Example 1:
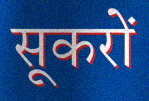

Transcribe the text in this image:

सूकरों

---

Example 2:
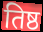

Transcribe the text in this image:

तिष्ठ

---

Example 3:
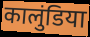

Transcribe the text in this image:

कालुंडिया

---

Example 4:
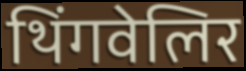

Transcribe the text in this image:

थिंगवेलिर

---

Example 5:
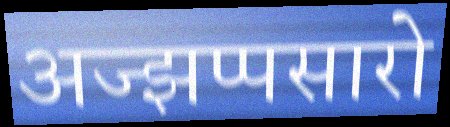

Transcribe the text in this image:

अज्झप्पसारो